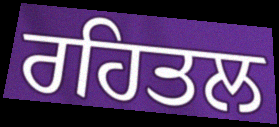
ਰਹਿਤਲ